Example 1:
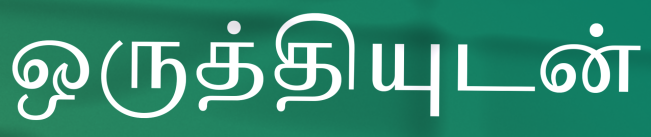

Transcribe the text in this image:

ஒருத்தியுடன்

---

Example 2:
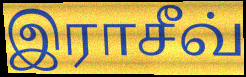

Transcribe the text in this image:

இராசீவ்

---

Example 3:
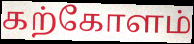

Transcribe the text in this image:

கற்கோளம்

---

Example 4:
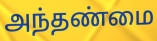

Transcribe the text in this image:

அந்தண்மை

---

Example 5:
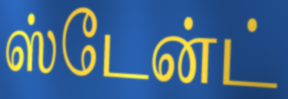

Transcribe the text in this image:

ஸ்டேன்ட்